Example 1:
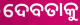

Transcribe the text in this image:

ଦେବତାକୁ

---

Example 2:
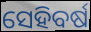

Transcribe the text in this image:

ସେହିବର୍ଷ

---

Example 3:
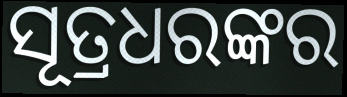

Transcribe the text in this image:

ସୂତ୍ରଧରଙ୍କର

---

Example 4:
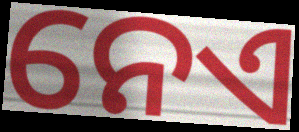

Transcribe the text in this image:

ନେଏ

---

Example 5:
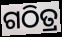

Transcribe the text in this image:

ଗଠିତ୍ର